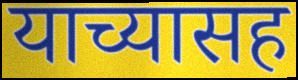
याच्यासह